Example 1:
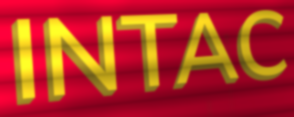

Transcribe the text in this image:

INTAC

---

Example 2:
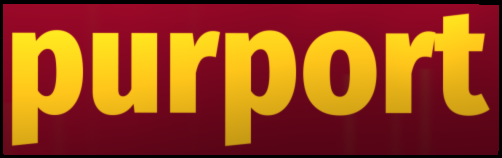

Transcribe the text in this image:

purport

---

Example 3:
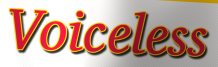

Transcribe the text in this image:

Voiceless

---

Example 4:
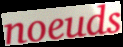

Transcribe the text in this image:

noeuds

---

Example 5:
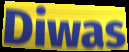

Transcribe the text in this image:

Diwas